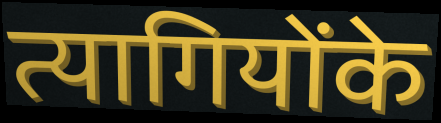
त्यागियोंके